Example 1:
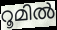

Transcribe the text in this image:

റൂമിൽ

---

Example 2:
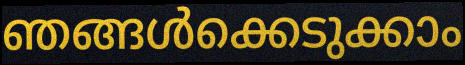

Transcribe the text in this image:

ഞങ്ങൾക്കെടുക്കാം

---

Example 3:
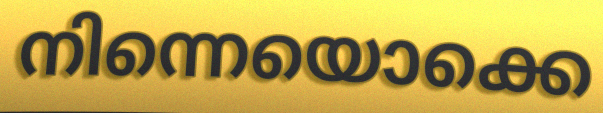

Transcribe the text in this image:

നിന്നെയൊക്കെ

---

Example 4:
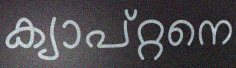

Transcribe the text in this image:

ക്യാപ്റ്റനെ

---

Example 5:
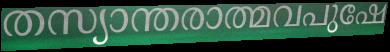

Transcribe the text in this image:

തസ്യാന്തരാത്മവപുഷേ